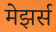
मेझर्स